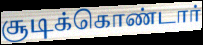
சூடிக்கொண்டார்